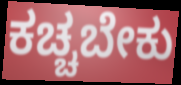
ಕಚ್ಚಬೇಕು